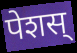
पेशस्